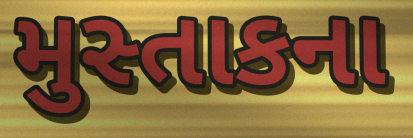
મુસ્તાકના